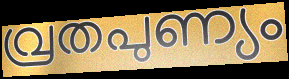
വ്രതപുണ്യം